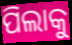
ପିଲାକୁ